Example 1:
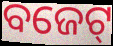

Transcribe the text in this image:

ବଜେଟ୍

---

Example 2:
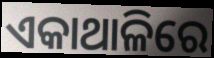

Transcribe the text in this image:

ଏକାଥାଳିରେ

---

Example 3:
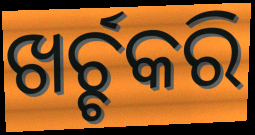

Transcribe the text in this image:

ଖର୍ଚ୍ଚକରି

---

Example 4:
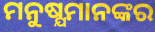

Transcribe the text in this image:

ମନୁଷ୍ଯମାନଙ୍କର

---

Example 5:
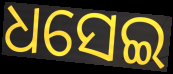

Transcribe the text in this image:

ଧସେଇ